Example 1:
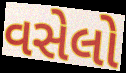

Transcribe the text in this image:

વસેલો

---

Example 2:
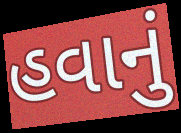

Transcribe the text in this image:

હવાનું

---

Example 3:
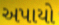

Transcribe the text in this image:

અપાયો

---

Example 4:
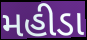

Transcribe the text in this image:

મહીડા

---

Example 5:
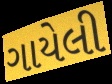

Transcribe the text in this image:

ગાયેલી